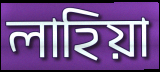
লাহিয়া